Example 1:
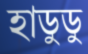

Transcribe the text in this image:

হাডুডু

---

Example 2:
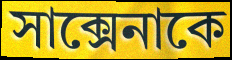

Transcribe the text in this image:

সাক্সেনাকে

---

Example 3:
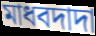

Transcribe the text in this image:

মাধবদাদা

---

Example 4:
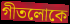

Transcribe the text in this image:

গীতলোকে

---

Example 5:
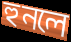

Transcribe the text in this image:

হুনলে